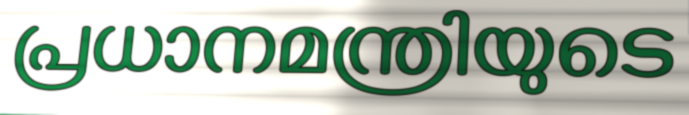
പ്രധാനമന്ത്രിയുടെ